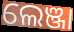
ଲେଞ୍ଜା